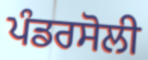
ਪੰਡਰਸੋਲੀ